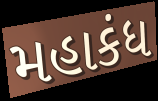
મહાકંધ